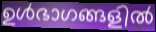
ഉൾഭാഗങ്ങളിൽ